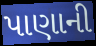
પાણાની